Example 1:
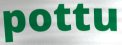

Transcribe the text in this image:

pottu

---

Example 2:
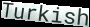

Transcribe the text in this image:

Turkish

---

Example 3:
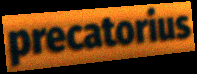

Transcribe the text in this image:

precatorius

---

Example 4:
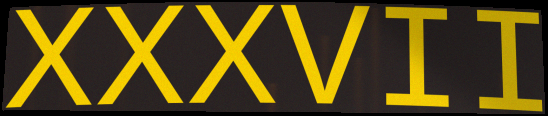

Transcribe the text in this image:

XXXVII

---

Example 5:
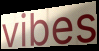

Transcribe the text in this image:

vibes